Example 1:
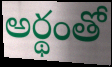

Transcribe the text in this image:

అర్థంతో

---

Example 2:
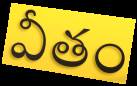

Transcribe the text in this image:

వీతం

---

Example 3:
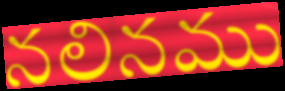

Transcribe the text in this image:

నలినము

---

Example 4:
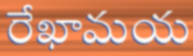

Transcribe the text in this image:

రేఖామయ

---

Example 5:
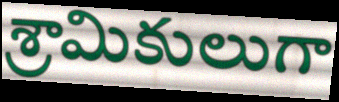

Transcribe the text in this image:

శ్రామికులుగా